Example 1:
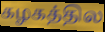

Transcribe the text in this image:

கழகத்தில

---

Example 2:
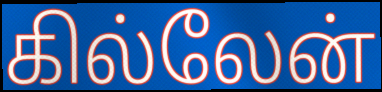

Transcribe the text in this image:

கில்லேன்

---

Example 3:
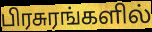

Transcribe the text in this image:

பிரசுரங்களில்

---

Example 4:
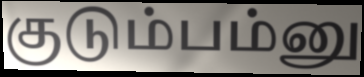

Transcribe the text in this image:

குடும்பம்னு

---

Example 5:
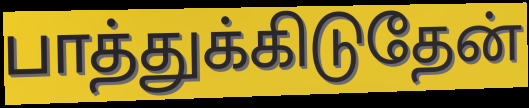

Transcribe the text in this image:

பாத்துக்கிடுதேன்